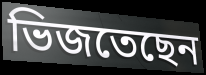
ভিজতেছেন